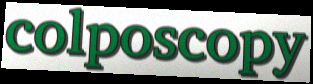
colposcopy